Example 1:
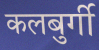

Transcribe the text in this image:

कलबुर्गी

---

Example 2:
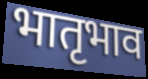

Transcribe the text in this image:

भातृभाव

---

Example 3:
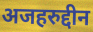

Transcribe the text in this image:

अजहरुद्दीन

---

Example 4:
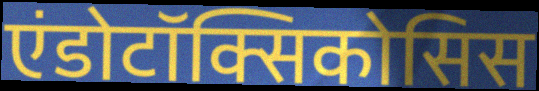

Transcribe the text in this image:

एंडोटॉक्सिकोसिस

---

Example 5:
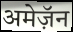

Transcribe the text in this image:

अमेज़ॅन